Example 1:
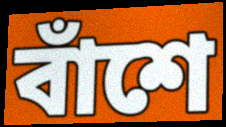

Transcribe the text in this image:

বাঁশে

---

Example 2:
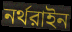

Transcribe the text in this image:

নর্থরাইন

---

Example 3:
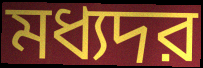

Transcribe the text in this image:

মধ্যদর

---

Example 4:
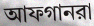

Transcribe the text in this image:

আফগানরা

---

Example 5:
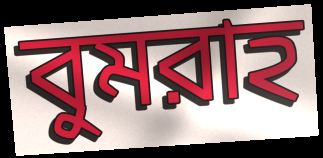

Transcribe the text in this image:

বুমরাহ